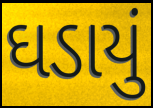
ઘડાયું